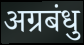
अग्रबंधु